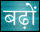
बढ़ों